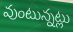
వుంటున్నట్లు